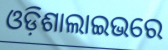
ଓଡ଼ିଶାଲାଇଭରେ